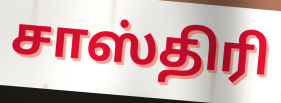
சாஸ்திரி